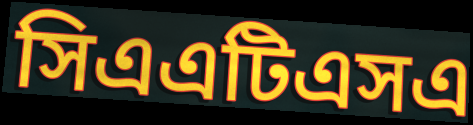
সিএএটিএসএ